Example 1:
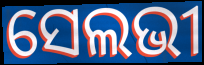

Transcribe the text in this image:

ସେଲଭୀ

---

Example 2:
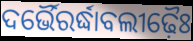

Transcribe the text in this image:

ଦର୍ଭୈରର୍ଦ୍ଧାବଲୀଢ଼ୈଃ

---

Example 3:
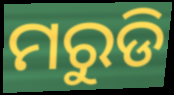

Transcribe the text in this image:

ମରୁଡି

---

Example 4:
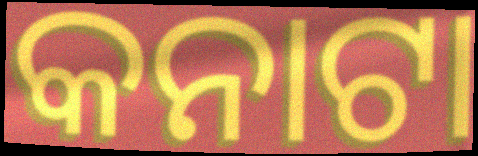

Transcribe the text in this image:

କନାଟା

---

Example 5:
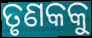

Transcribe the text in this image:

ତୃଣକକୁ